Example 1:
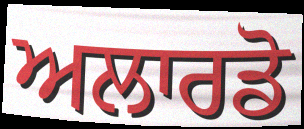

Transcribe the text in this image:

ਅਲਾਰਡੋ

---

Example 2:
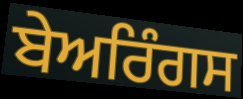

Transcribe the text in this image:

ਬੇਅਰਿੰਗਸ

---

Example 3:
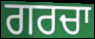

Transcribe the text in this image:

ਗਰਚਾ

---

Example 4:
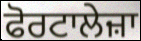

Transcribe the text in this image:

ਫੋਰਟਾਲੇਜ਼ਾ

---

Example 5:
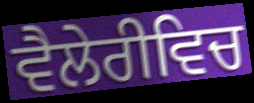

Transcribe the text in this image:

ਵੈਲੇਰੀਵਿਚ